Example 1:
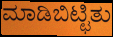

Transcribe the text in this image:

ಮಾಡಿಬಿಟ್ಟಿತು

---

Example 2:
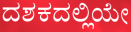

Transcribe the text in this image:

ದಶಕದಲ್ಲಿಯೇ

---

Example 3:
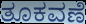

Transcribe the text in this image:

ತೂಕವಣೆ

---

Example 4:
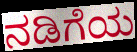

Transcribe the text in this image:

ನಡಿಗೆಯ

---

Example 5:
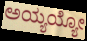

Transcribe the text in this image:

ಅಯ್ಯಯ್ಯೋ